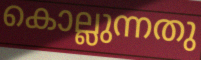
കൊല്ലുന്നതു